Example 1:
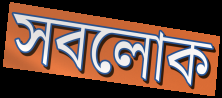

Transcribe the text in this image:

সবলোক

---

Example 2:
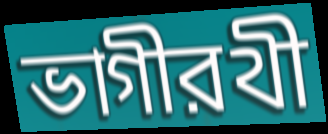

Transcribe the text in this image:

ভাগীরথী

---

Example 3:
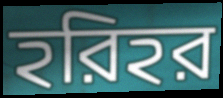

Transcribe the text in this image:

হরিহর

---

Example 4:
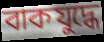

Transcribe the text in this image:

বাকযুদ্ধে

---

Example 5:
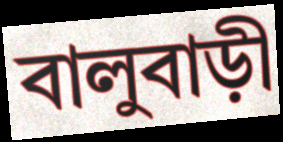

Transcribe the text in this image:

বালুবাড়ী